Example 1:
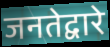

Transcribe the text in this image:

जनतेद्वारे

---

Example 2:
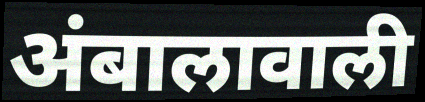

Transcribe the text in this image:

अंबालावाली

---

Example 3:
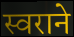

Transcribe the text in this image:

स्वराने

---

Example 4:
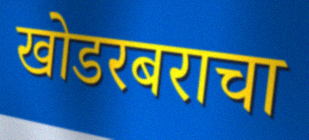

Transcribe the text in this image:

खोडरबराचा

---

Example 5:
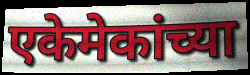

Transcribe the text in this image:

एकेमेकांच्या